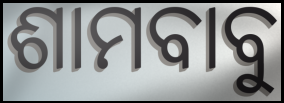
ଶାମବାବୁ